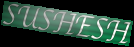
SUSHESH